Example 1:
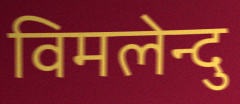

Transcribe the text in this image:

विमलेन्दु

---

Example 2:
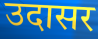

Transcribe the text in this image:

उदासर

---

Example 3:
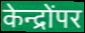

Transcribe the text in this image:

केन्द्रोंपर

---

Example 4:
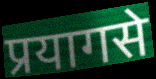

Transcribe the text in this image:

प्रयागसे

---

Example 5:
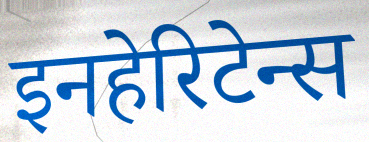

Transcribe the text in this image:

इनहेरिटेन्स